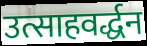
उत्साहवर्द्धन